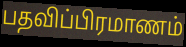
பதவிப்பிரமாணம்